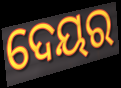
ଦେୟର